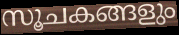
സൂചകങ്ങളും